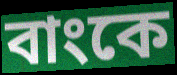
বাংকে